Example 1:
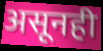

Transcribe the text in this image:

असूनही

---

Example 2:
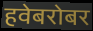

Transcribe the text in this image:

हवेबरोबर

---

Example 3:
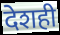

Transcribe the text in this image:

देशही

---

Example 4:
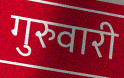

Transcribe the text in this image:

गुरुवारी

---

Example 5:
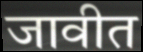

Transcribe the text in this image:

जावीत